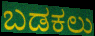
ಬಡಕಲು